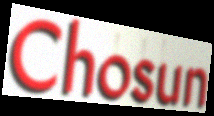
Chosun